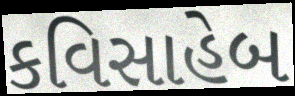
કવિસાહેબ